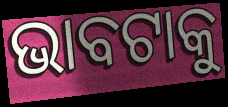
ଭାବଟାକୁ